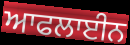
ਆਫਲਾਈਨ